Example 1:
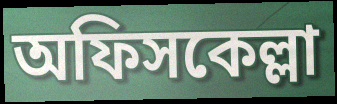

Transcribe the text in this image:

অফিসকেল্লা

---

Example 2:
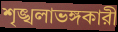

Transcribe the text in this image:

শৃঙ্খলাভঙ্গকারী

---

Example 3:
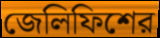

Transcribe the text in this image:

জেলিফিশের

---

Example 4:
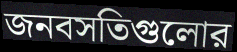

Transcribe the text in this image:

জনবসতিগুলোর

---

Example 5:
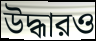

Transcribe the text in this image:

উদ্ধারও